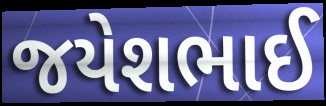
જયેશભાઈ